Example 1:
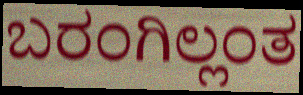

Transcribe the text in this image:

ಬರಂಗಿಲ್ಲಂತ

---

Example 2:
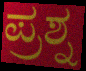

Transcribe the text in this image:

ಪ್ರಶ್ನ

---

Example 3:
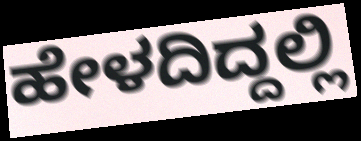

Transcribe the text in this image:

ಹೇಳದಿದ್ದಲ್ಲಿ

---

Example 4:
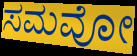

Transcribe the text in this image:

ಸಮವೋ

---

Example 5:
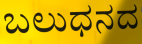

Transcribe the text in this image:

ಬಲುಧನದ